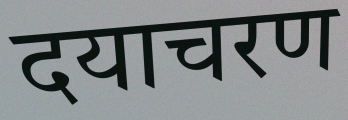
दयाचरण